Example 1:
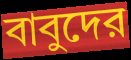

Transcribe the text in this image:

বাবুদের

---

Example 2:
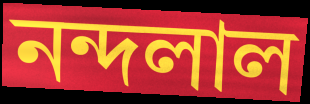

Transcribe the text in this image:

নন্দলাল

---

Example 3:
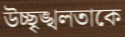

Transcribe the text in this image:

উচ্ছৃঙ্খলতাকে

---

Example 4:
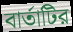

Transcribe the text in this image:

বার্তাটির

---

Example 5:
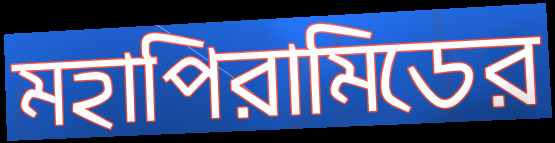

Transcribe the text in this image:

মহাপিরামিডের